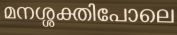
മനശ്ശക്തിപോലെ